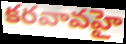
కరవావహై